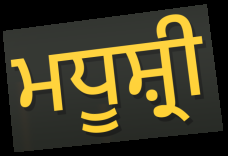
ਮਧੂਸ਼੍ਰੀ